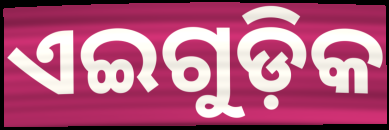
ଏଇଗୁଡ଼ିକ